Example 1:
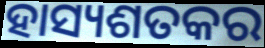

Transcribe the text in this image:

ହାସ୍ୟଶତକର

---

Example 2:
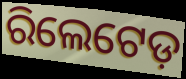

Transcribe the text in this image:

ରିଲେଟେଡ଼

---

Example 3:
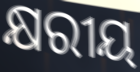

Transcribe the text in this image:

କ୍ଷରୀୟ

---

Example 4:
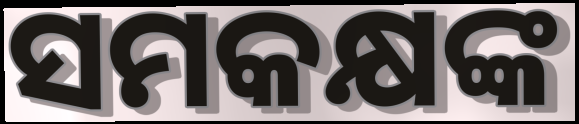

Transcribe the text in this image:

ସମକକ୍ଷଙ୍କ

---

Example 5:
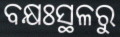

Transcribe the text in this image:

ବକ୍ଷଃସ୍ଥଳରୁ